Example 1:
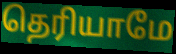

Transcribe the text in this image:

தெரியாமே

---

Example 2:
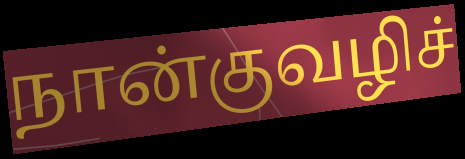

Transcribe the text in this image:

நான்குவழிச்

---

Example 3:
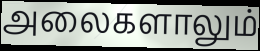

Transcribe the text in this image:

அலைகளாலும்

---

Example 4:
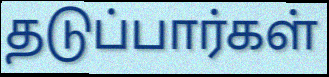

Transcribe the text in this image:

தடுப்பார்கள்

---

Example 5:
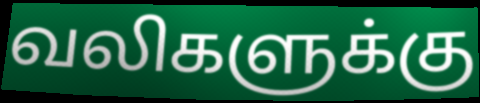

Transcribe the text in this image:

வலிகளுக்கு